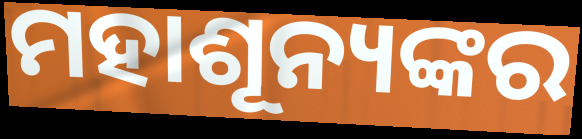
ମହାଶୂନ୍ୟଙ୍କର